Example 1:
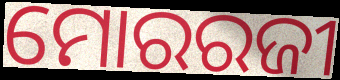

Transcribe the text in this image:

ମୋରରଜୀ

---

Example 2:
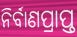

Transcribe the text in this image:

ନିର୍ବାଣପ୍ରାପ୍ତ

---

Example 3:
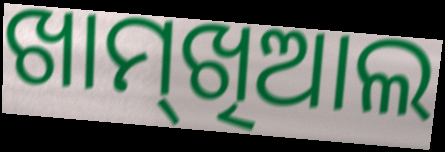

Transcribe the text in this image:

ଖାମ୍‌ଖିଆଲ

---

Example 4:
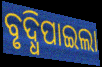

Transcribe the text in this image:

ବୃଦ୍ଧିପାଇଲା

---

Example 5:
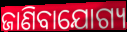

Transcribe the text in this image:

ଜାଣିବାଯୋଗ୍ୟ